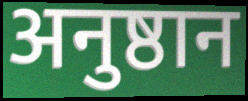
अनुष्ठान